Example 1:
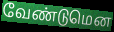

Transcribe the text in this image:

வேண்டுமென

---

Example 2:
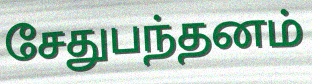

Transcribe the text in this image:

சேதுபந்தனம்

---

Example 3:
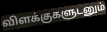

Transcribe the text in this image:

விளக்குகளுடனும்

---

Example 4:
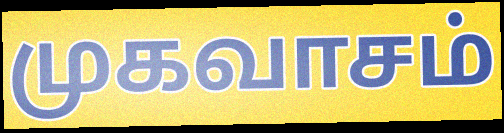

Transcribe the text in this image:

முகவாசம்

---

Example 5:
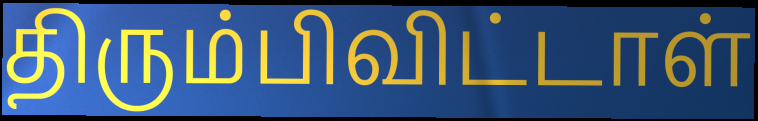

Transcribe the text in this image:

திரும்பிவிட்டாள்